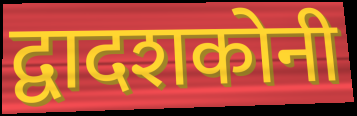
द्वादशकोनी